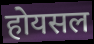
होयसल